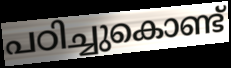
പഠിച്ചുകൊണ്ട്